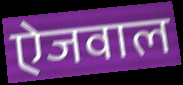
ऐजवाल